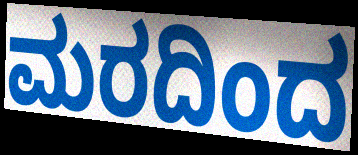
ಮರದಿಂದ